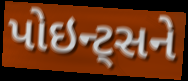
પોઇન્ટ્સને